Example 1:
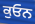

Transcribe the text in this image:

ਕੁਓਨ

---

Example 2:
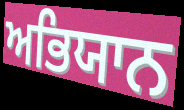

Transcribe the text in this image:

ਅਭਿਯਾਨ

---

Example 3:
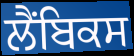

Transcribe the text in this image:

ਲੈਂਬਿਕਸ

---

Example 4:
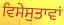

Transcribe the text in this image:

ਵਿਸੇਸੁਤਾਵਾਂ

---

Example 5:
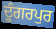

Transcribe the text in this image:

ਦੂੰਗਰਪੁਰ